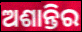
ଅଶାନ୍ତିର